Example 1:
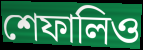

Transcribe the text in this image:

শেফালিও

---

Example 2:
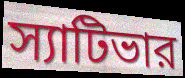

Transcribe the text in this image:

স্যাটিভার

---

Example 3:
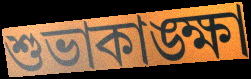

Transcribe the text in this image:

শুভাকাঙ্ক্ষা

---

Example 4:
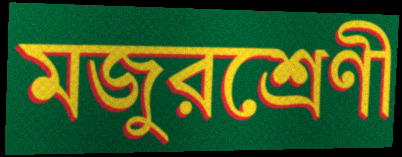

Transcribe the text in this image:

মজুরশ্রেণী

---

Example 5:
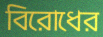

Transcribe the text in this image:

বিরোধের